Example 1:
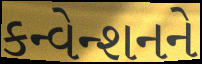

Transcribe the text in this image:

કન્વેન્શનને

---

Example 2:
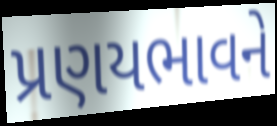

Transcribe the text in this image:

પ્રણયભાવને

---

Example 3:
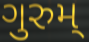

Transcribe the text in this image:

ગુરુમ્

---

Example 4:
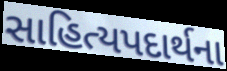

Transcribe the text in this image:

સાહિત્યપદાર્થના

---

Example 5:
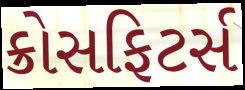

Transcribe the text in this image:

ક્રોસફિટર્સ